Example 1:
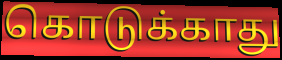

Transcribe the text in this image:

கொடுக்காது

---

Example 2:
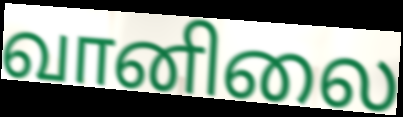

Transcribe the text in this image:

வானிலை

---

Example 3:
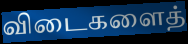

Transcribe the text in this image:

விடைகளைத்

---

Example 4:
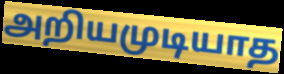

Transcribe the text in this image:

அறியமுடியாத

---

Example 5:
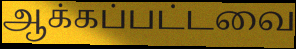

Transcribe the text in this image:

ஆக்கப்பட்டவை